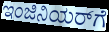
ಇಂಜಿನಿಯರ್‌ಗೆ